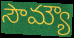
సౌమ్యౌ